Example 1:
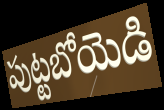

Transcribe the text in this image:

పుట్టబోయెడి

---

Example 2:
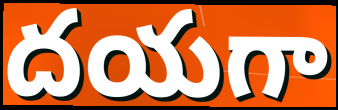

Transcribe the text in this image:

దయగా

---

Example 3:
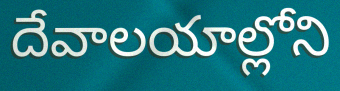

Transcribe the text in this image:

దేవాలయాల్లోని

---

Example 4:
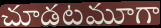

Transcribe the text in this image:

చూడటమూగా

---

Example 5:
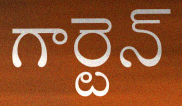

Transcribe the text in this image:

గార్టెన్